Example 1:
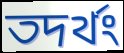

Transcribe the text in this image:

তদর্থং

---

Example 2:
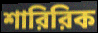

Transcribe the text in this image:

শারিরিক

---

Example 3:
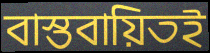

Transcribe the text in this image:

বাস্তবায়িতই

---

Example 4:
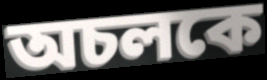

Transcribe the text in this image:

অচলকে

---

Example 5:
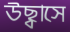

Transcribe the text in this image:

উছ্বাসে